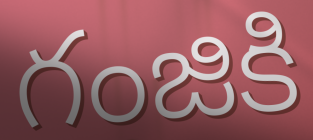
గంజికి